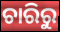
ଚାରିରୁ